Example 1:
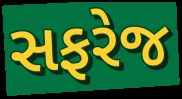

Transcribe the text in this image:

સફરેજ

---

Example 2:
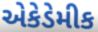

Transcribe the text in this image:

એકેડેમીક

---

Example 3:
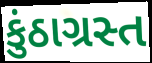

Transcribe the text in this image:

કુંઠાગ્રસ્ત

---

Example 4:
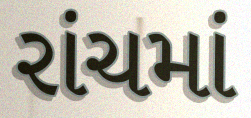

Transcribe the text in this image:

રાંચમાં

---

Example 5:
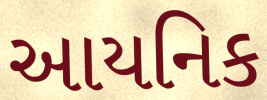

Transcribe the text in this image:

આયનિક